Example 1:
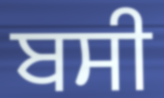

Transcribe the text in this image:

ਬਸੀ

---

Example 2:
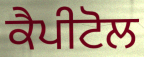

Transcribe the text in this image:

ਕੈਪੀਟੋਲ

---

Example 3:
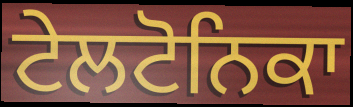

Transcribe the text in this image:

ਟੇਲਟੋਨਿਕਾ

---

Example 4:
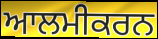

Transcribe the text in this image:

ਆਲਮੀਕਰਨ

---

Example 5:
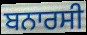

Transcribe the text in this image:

ਬਨਾਰਸੀ